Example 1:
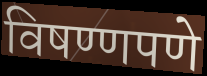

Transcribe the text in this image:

विषण्णपणे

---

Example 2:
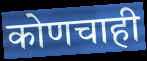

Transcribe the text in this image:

कोणचाही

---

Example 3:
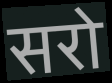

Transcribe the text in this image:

सरो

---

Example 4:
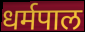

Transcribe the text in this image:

धर्मपाल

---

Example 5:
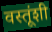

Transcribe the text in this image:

वस्तूंशी